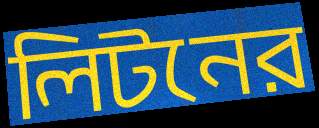
লিটনের